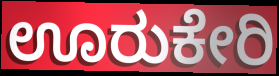
ಊರುಕೇರಿ